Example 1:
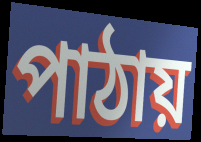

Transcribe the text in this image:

পাঠায়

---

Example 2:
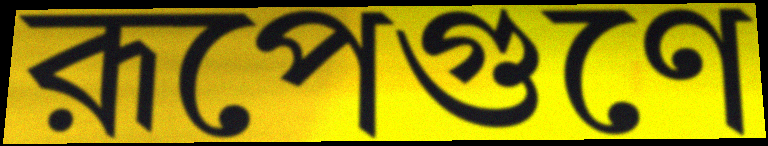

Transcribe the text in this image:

রূপেগুণে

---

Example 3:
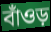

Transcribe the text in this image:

বাঁওড়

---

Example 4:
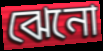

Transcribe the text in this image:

ঝেনো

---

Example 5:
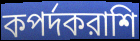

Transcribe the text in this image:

কপর্দকরাশি